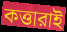
কত্তারাই